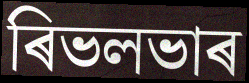
ৰিভলভাৰ